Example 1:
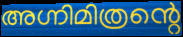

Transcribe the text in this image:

അഗ്നിമിത്രന്റെ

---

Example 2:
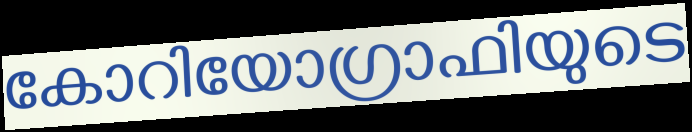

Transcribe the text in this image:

കോറിയോഗ്രാഫിയുടെ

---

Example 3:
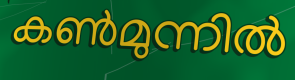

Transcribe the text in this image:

കൺമുന്നിൽ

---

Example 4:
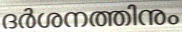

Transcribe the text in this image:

ദർശനത്തിനും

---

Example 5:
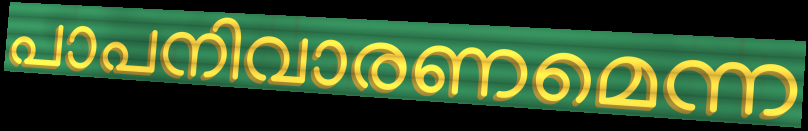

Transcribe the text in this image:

പാപനിവാരണമെന്ന